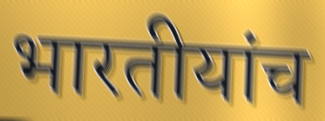
भारतीयांच